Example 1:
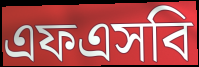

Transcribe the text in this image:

এফএসবি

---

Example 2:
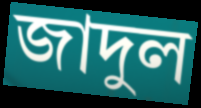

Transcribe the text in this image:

জাদুল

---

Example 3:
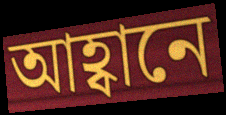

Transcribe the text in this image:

আহ্বানে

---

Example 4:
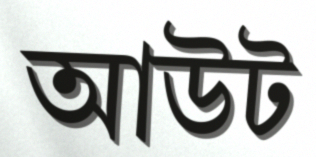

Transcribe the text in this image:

আউট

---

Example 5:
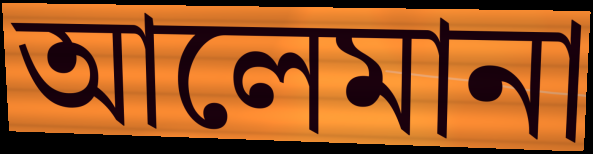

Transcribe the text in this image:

আলেমানা